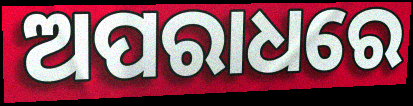
ଅପରାଧରେ